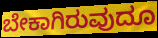
ಬೇಕಾಗಿರುವುದೂ